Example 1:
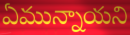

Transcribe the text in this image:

ఏమున్నాయని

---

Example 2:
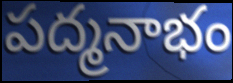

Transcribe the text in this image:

పద్మనాభం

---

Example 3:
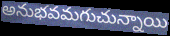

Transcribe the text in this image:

అనుభవమగుచున్నాయి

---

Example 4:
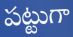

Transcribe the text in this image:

పట్టుగా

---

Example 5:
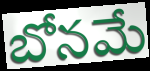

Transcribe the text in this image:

బోనమే